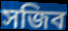
সজিব